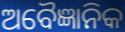
ଅବୈଜ୍ଞାନିକ